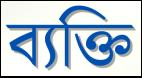
ব্যক্তি